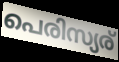
പെരിസ്യര്